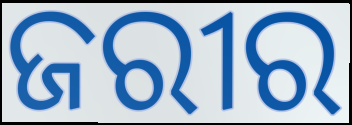
ଜରୀର